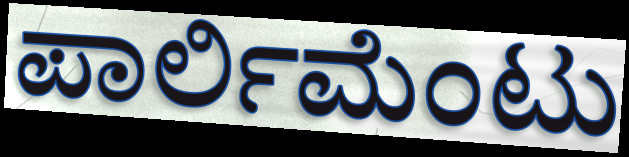
ಪಾರ್ಲಿಮೆಂಟು